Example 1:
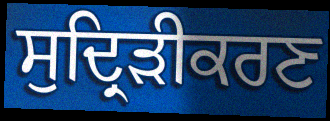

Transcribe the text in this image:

ਸੁਦ੍ਰਿੜੀਕਰਣ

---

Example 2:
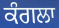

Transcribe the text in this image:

ਕੰਗਲਾ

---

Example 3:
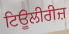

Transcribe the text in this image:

ਟਿਊਲੀਰੀਜ਼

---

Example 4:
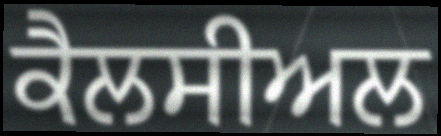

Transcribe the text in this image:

ਕੈਲਸੀਅਲ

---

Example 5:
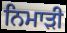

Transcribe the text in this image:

ਨਿਮਾੜੀ